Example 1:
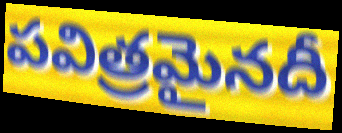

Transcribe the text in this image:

పవిత్రమైనదీ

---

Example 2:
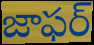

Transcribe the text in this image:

జాఫర్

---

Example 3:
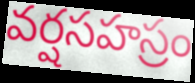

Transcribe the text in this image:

వర్షసహస్రం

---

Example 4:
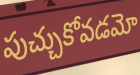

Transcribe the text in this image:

పుచ్చుకోవడమో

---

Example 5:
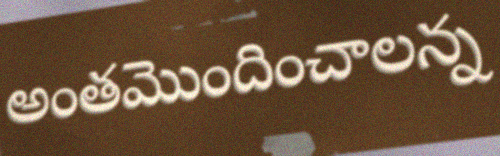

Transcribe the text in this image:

అంతమొందించాలన్న